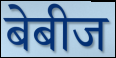
बेबीज